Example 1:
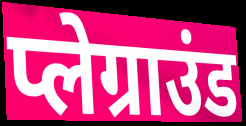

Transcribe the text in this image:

प्लेग्राउंड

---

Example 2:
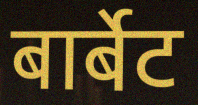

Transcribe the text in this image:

बार्बेट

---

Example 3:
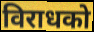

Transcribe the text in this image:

विराधको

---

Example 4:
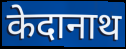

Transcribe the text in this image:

केदानाथ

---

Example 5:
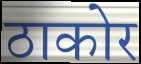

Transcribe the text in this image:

ठाकोर